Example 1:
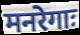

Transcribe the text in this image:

मनरेगाः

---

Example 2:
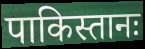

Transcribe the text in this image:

पाकिस्तानः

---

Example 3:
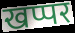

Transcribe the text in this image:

खप्पर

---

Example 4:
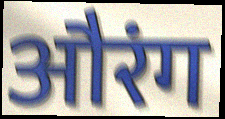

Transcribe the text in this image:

औरंग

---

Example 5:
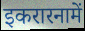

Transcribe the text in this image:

इकरारनामें